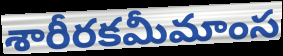
శారీరకమీమాంస